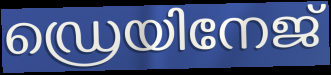
ഡ്രെയിനേജ്